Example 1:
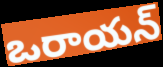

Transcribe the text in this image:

ఒరాయన్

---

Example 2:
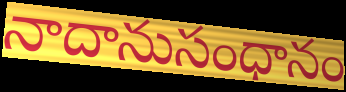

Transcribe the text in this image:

నాదానుసంధానం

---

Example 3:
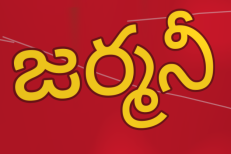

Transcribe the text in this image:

జర్మనీ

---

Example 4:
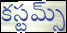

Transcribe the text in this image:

కస్టమ్స్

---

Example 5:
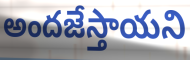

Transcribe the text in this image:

అందజేస్తాయని